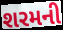
શરમની